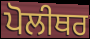
ਪੋਲੀਥਰ